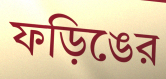
ফড়িঙের